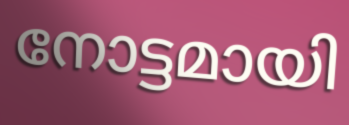
നോട്ടമായി